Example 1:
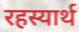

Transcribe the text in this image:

रहस्यार्थ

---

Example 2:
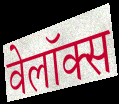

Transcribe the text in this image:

वेलॉक्स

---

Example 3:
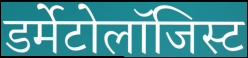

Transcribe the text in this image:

डर्मेटोलॉजिस्ट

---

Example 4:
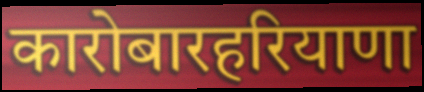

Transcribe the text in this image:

कारोबारहरियाणा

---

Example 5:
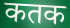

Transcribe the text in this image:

कतक